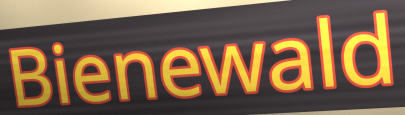
Bienewald